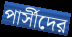
পার্সীদের